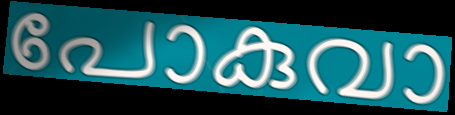
പോകുവാ